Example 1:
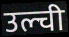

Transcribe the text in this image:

उल्ची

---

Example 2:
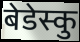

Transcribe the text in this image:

बेडेस्कु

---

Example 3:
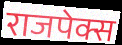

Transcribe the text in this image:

राजपेक्स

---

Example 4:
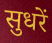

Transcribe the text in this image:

सुधरें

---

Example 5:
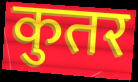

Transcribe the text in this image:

कुतर